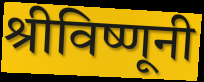
श्रीविष्णूनी